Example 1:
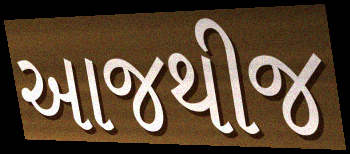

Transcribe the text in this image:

આજથીજ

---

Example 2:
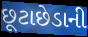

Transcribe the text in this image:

છૂટાછેડાની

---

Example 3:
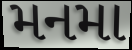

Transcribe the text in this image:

મનમા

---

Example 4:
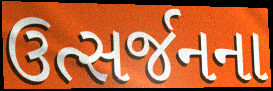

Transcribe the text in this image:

ઉત્સર્જનના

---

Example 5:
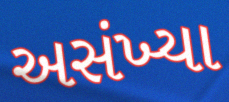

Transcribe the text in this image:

અસંખ્યા